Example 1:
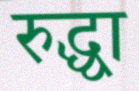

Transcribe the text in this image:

रुद्ध्वा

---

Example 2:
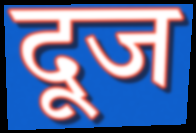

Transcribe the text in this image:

दूज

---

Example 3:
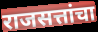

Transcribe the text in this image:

राजसत्तांचा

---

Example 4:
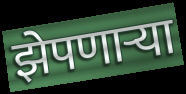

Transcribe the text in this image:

झेपणार्‍या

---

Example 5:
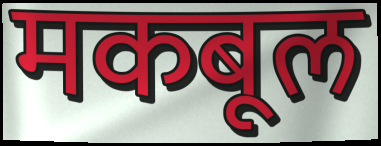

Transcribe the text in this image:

मकबूल